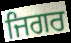
ਜਿਗਰ